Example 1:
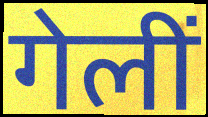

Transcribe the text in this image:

गेलीं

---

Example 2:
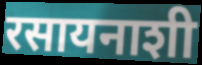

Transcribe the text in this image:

रसायनाशी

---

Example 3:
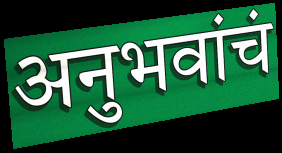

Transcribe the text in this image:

अनुभवांचं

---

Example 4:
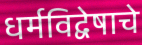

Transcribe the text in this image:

धर्मविद्वेषाचे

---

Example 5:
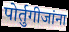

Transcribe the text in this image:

पोर्तुगीजांना